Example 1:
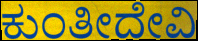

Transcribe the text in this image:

ಕುಂತೀದೇವಿ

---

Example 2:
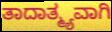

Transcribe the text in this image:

ತಾದಾತ್ಮ್ಯವಾಗಿ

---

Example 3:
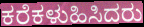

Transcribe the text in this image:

ಕರೆಕಳುಹಿಸಿದರು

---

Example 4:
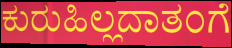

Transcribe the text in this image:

ಕುರುಹಿಲ್ಲದಾತಂಗೆ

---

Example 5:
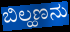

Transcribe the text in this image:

ಬಿಲ್ಹಣನು